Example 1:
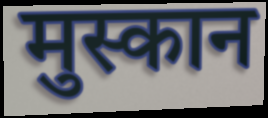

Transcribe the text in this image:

मुस्‍कान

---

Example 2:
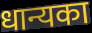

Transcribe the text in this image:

धान्यका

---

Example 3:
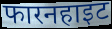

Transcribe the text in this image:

फारनहाइट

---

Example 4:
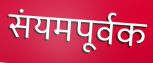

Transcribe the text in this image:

संयमपूर्वक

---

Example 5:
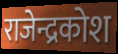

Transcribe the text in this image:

राजेन्द्रकोश